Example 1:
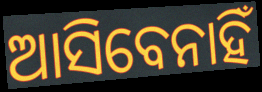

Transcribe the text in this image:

ଆସିବେନାହିଁ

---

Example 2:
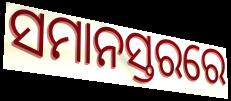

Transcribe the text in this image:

ସମାନସ୍ତରରେ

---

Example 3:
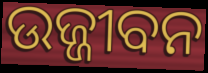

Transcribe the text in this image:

ଉଜ୍ଜୀବନ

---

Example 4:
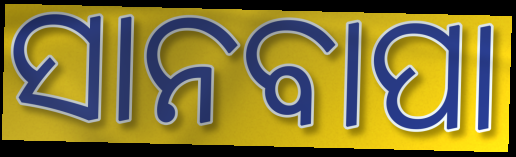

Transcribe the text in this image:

ସାନବାପା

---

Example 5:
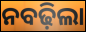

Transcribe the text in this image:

ନବଢ଼ିଲା